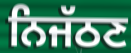
ਨਿਜੱਠਣ